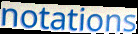
notations